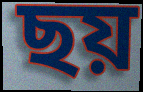
ছয়